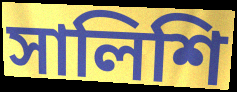
সালিশি